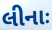
લીનાઃ